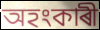
অহংকাৰী